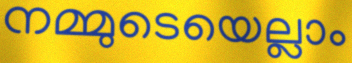
നമ്മുടെയെല്ലാം